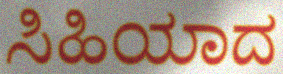
ಸಿಹಿಯಾದ